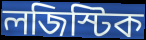
লজিস্টিক